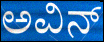
ಅವಿನ್